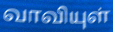
வாவியுள்